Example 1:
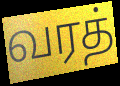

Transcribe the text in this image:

வரத்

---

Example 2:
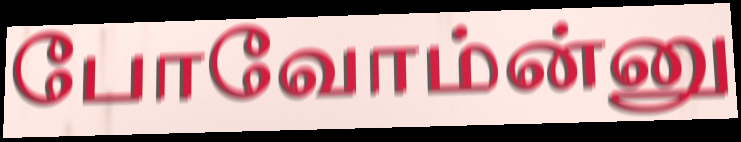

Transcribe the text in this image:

போவோம்ன்னு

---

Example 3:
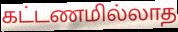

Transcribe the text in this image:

கட்டணமில்லாத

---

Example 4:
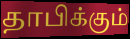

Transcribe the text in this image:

தாபிக்கும்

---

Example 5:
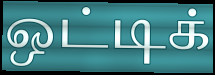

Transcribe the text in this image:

ஒட்டிக்